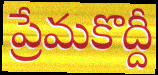
ప్రేమకొద్దీ